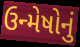
ઉન્મેષોનું